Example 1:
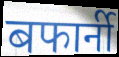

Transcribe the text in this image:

बफार्नी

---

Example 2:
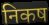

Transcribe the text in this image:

निकष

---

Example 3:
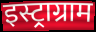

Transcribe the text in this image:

इस्ट्राग्राम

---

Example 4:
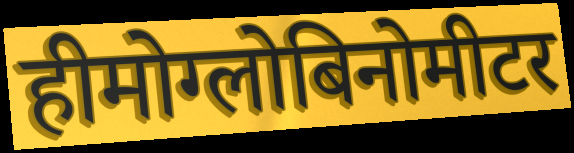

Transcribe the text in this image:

हीमोग्लोबिनोमीटर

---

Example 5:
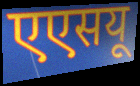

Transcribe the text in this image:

एएसयू